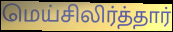
மெய்சிலிர்த்தார்